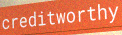
creditworthy